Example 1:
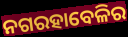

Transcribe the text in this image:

ନଗରହାବେଳିର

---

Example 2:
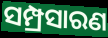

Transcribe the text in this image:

ସମ୍ପ୍ରସାରଣ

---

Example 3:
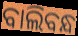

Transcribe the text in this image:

ବାଲିବନ୍ଧ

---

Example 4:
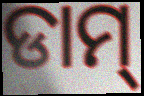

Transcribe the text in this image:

ଡାମ୍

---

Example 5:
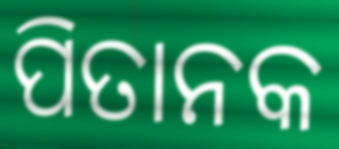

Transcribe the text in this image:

ପିତାନକ